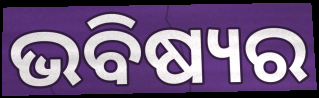
ଭବିଷ୍ୟର